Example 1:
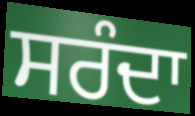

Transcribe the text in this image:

ਸਰੰਦਾ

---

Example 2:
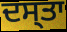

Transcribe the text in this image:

ਦਸ੍ਤਾ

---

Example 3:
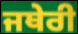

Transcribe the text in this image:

ਜਥੇਰੀ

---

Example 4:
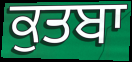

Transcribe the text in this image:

ਕੁਤਬਾ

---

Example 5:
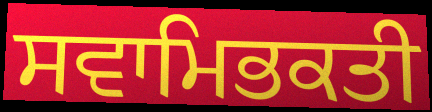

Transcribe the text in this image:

ਸਵਾਮਿਭਕਤੀ